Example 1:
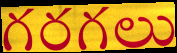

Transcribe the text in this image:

గరగలు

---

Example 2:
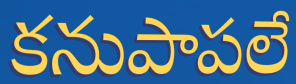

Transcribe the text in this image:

కనుపాపలే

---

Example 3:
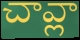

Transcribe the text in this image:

చావ్లా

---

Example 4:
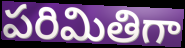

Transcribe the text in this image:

పరిమితిగా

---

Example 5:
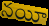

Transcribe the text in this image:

నయీ